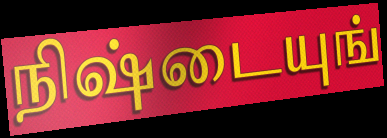
நிஷ்டையுங்